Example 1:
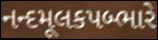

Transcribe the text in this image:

નન્દમૂલકપબ્ભારે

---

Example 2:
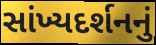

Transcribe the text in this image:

સાંખ્યદર્શનનું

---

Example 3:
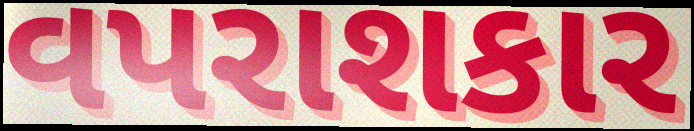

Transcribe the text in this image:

વપરાશકાર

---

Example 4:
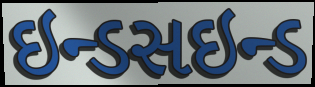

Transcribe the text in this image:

ઇન્ડસઇન્ડ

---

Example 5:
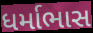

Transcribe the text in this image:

ધર્માભાસ